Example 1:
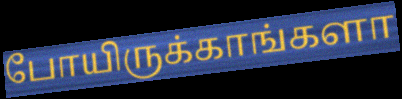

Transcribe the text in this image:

போயிருக்காங்களா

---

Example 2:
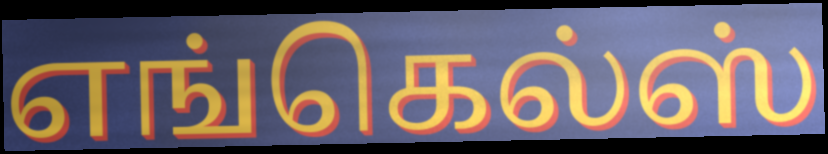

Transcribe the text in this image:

எங்கெல்ஸ்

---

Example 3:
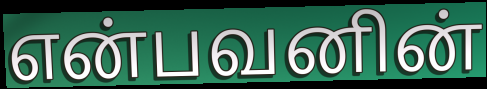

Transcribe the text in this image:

என்பவனின்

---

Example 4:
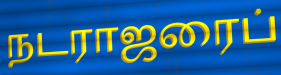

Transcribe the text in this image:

நடராஜரைப்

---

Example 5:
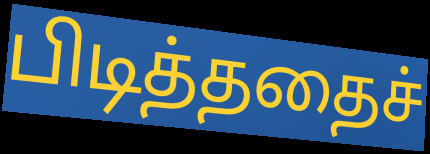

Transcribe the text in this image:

பிடித்ததைச்